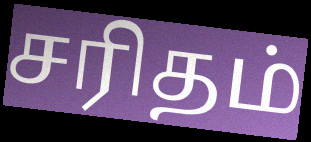
சரிதம்